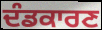
ਦੰਡਕਾਰਣ